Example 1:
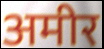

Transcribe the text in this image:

अमीर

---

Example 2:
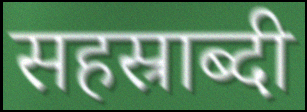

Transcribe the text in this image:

सहस्राब्दी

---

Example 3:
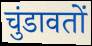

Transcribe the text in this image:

चुंडावतों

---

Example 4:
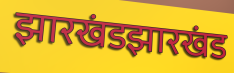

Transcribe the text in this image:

झारखंडझारखंड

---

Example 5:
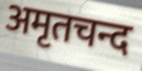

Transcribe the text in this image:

अमृतचन्द